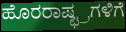
ಹೊರರಾಷ್ಟ್ರಗಳಿಗೆ